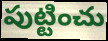
పుట్టించు